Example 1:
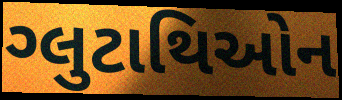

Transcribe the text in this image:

ગ્લુટાથિઓન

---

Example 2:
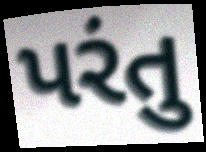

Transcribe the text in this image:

પરંતુ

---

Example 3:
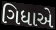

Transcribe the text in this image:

ગિધાએ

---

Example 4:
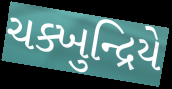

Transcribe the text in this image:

ચક્ખુન્દ્રિયે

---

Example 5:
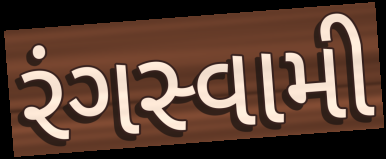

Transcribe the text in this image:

રંગસ્વામી